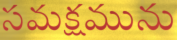
సమక్షమును